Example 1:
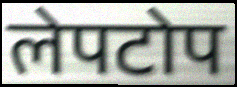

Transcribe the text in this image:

लेपटोप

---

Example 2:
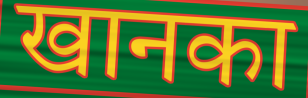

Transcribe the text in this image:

खानका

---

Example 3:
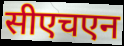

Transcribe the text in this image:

सीएचएन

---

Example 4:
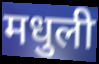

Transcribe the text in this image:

मधुली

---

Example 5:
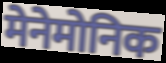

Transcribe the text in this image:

मेनेमोनिक